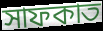
সাফকাত